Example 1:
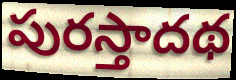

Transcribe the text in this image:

పురస్తాదథ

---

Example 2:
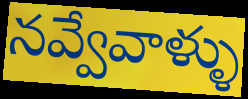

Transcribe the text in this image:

నవ్వేవాళ్ళు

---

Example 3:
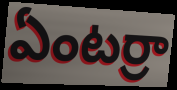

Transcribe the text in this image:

ఏంటర్రా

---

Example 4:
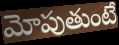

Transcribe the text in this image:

మోపుతుంటే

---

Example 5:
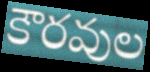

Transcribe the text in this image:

కౌరవుల